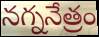
నగ్ననేత్రం